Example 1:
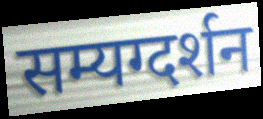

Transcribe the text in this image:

सम्यग्दर्शन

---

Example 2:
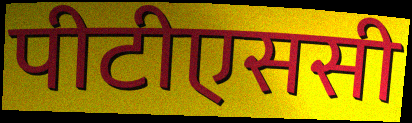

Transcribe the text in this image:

पीटीएससी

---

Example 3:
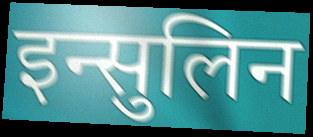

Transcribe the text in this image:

इन्सुलिन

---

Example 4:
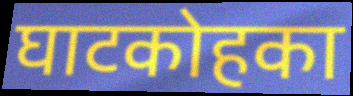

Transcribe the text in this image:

घाटकोहका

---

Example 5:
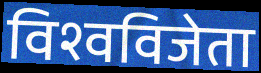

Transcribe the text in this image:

विश्वविजेता